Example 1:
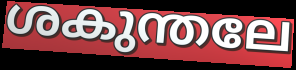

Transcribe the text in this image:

ശകുന്തലേ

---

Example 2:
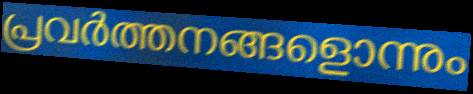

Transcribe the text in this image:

പ്രവർത്തനങ്ങളൊന്നും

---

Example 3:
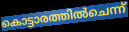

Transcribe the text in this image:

കൊട്ടാരത്തിൽചെന്ന്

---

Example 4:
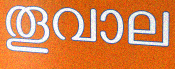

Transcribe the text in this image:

തൂവാല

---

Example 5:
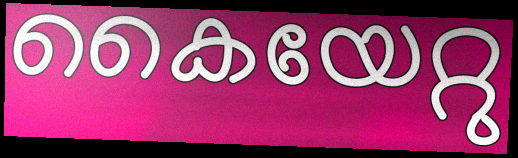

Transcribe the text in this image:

കൈയേറ്റു